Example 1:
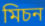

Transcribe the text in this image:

মিচন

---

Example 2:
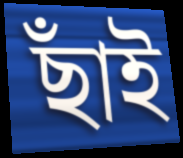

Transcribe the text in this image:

ছাঁই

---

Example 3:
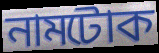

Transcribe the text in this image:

নামটোক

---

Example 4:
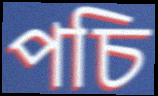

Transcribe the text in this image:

পচি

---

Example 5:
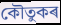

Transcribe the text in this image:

কৌতুকৰ